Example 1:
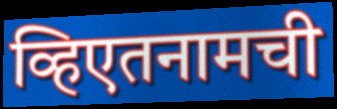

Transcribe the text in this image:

व्हिएतनामची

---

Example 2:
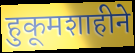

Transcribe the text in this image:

हुकूमशाहीने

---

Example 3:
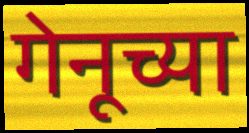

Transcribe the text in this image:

गेनूच्या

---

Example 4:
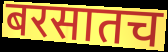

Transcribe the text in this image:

बरसातच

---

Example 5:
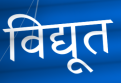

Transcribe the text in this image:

विद्यूत